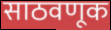
साठवणूक